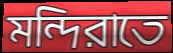
মন্দিরাতে